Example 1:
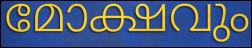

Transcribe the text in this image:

മോക്ഷവും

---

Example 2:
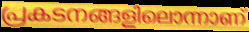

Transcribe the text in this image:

പ്രകടനങ്ങളിലൊന്നാണ്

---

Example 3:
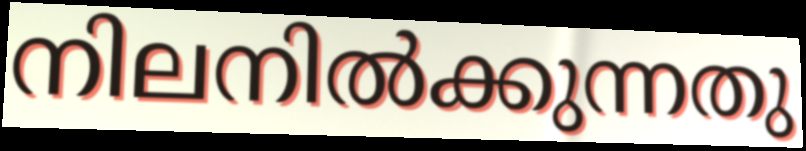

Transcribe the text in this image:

നിലനിൽക്കുന്നതു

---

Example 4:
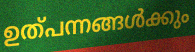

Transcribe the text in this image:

ഉത്പന്നങ്ങൾക്കും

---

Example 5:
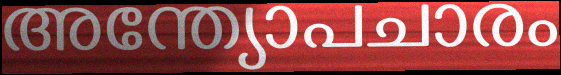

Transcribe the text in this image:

അന്ത്യോപചാരം